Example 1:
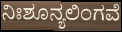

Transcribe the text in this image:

ನಿಃಶೂನ್ಯಲಿಂಗವೆ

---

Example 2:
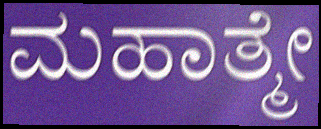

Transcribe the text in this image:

ಮಹಾತ್ಮೇ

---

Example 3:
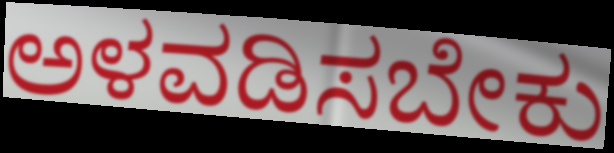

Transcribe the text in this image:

ಅಳವಡಿಸಬೇಕು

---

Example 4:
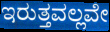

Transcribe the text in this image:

ಇರುತ್ತವಲ್ಲವೇ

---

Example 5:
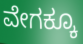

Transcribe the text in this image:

ವೇಗಕ್ಕೂ